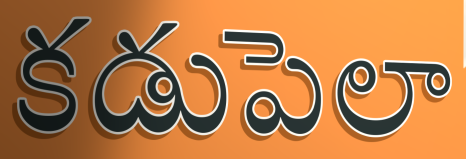
కడుపెలా